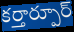
కర్తార్పూర్